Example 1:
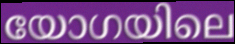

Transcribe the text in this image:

യോഗയിലെ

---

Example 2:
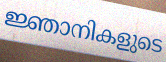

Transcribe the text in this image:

ജ്ഞാനികളുടെ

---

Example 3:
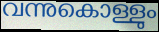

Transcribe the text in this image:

വന്നുകൊള്ളും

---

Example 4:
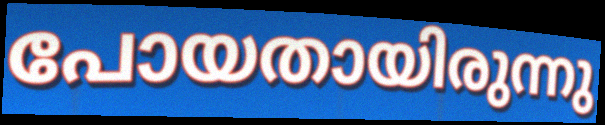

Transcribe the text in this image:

പോയതായിരുന്നു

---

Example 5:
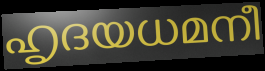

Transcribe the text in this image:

ഹൃദയധമനീ